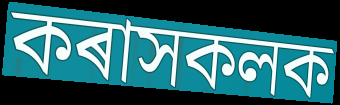
কৰাসকলক